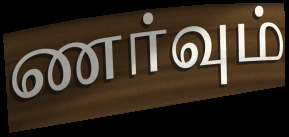
ணர்வும்